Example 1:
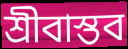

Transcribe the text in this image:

শ্রীবাস্তব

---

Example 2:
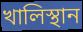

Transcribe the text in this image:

খালিস্থান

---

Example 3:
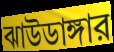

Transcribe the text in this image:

ঝাউডাঙ্গার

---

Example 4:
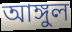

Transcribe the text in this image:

আঙ্গুল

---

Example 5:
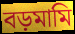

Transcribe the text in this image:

বড়মামি